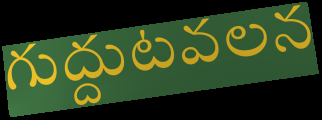
గుద్దుటవలన